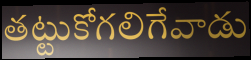
తట్టుకోగలిగేవాడు